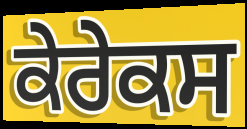
ਕੇਰੇਕਸ